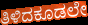
ತಿಳಿದಕೂಡಲೇ